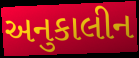
અનુકાલીન